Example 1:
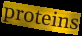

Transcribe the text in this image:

proteins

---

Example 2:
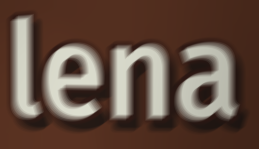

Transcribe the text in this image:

lena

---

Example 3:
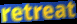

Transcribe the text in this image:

retreat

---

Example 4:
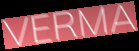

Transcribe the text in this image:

VERMA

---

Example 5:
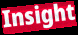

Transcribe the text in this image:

Insight